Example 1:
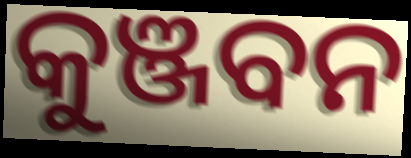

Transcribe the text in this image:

କୁଞ୍ଜବନ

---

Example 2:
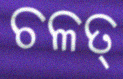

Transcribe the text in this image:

ଚଳତ୍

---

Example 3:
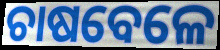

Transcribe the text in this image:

ଚାଷବେଳେ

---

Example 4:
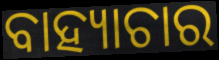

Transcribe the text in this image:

ବାହ୍ୟାଚାର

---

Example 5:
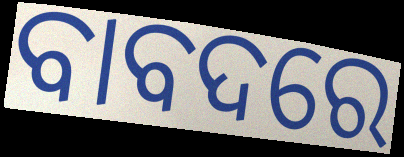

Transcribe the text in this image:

ବାବଦରେ